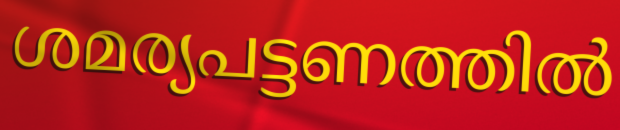
ശമര്യപട്ടണത്തിൽ